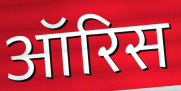
ऑरिस